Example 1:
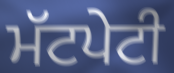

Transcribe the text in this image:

ਮੱਟਪੇਟੀ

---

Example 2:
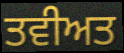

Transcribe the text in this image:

ਤਵੀਅਤ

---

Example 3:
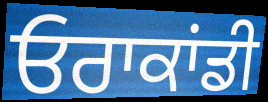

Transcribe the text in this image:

ਓਰਾਕਾਂਡੀ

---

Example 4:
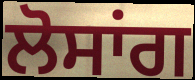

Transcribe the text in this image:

ਲੋਸਾਂਗ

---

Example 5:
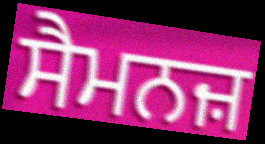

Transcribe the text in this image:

ਸੈਮਨਜ਼